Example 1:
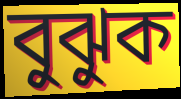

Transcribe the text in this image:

বুঝুক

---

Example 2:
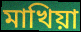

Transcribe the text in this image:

মাখিয়া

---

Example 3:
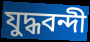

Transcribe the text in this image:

যুদ্ধবন্দী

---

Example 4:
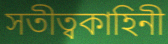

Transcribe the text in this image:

সতীত্বকাহিনী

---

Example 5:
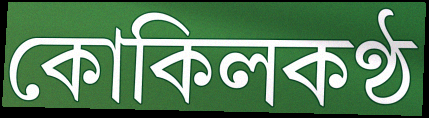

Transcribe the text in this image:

কোকিলকণ্ঠ